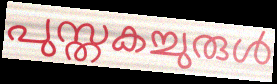
പുസ്തകച്ചുരുൾ